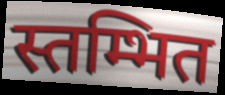
स्तम्भित